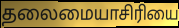
தலைமையாசிரியை